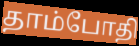
தாம்போதி